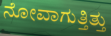
ನೋವಾಗುತ್ತಿತ್ತು